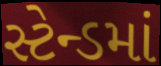
સ્ટેન્ડમાં